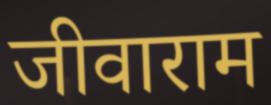
जीवाराम